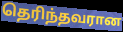
தெரிந்தவரான